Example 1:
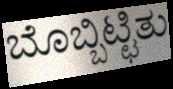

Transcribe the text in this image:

ಬೊಬ್ಬಿಟ್ಟಿತು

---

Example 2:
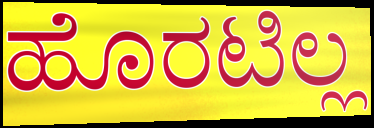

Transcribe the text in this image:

ಹೊರಟಿಲ್ಲ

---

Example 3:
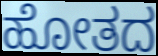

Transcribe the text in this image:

ಹೋತದ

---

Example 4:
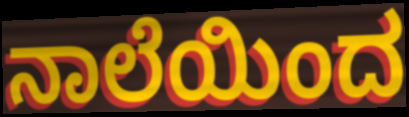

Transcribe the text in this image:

ನಾಲೆಯಿಂದ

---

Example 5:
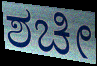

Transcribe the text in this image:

ಶಚೀ